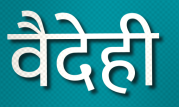
वैदेही